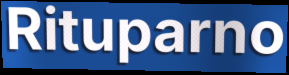
Rituparno